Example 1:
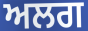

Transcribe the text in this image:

ਅਲਗ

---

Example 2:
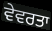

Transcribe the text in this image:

ਵੇਵਰਤਾ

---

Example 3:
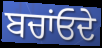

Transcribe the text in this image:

ਬਚਾਂਓਦੇ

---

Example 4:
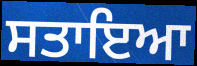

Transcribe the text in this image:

ਸਤਾਇਆ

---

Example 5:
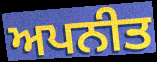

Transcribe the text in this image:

ਅਪਨੀਤ